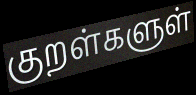
குறள்களுள்